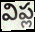
విప్ల